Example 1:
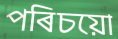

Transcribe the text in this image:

পৰিচয়ো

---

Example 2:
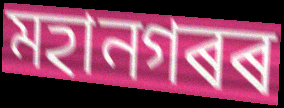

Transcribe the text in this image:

মহানগৰৰ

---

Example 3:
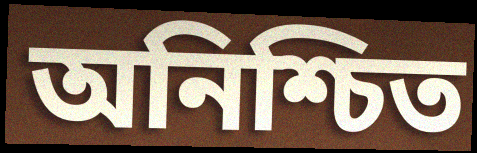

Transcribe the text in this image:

অনিশ্চিত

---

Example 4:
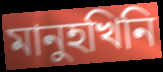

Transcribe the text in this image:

মানুহখিনি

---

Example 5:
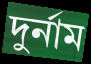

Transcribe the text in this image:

দুৰ্নাম